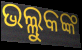
ଭଲ୍ଲୁକଙ୍କ